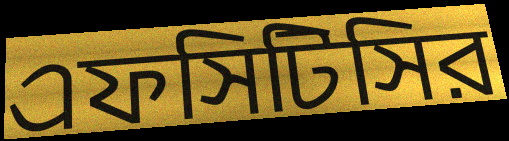
এফসিটিসির